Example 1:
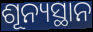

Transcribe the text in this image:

ଶୂନ୍ୟସ୍ଥାନ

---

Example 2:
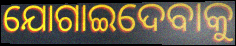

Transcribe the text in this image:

ଯୋଗାଇଦେବାକୁ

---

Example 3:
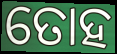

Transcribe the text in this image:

ତୋହ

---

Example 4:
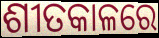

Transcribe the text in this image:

ଶୀତକାଳରେ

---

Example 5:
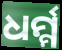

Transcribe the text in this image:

ଧର୍ମ୍ମ